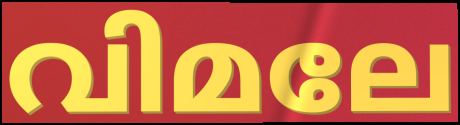
വിമലേ